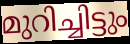
മുറിച്ചിട്ടും